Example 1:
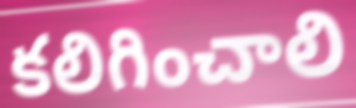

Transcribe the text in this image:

కలిగించాలి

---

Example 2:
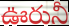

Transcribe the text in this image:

ఊరునీ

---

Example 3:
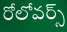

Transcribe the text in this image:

రోలోవర్స్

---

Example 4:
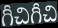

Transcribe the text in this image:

గీచిగీచి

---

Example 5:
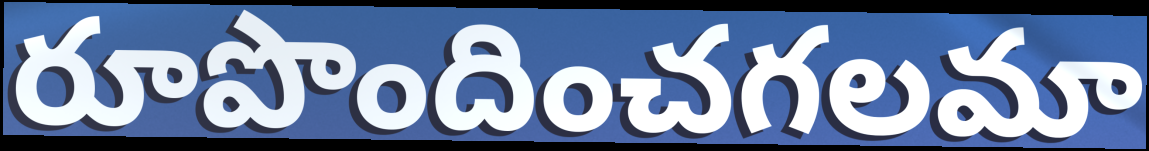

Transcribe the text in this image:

రూపొందించగలమా